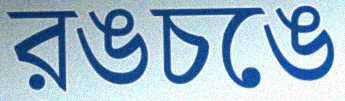
রঙচঙে